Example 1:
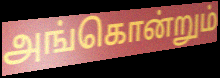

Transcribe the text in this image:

அங்கொன்றும்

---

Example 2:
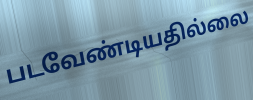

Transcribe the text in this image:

படவேண்டியதில்லை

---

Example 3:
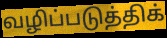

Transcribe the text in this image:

வழிப்படுத்திக்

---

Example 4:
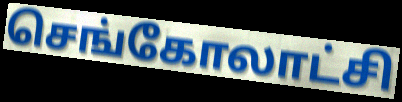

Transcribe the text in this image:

செங்கோலாட்சி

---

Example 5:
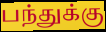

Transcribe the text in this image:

பந்துக்கு